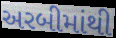
અરબીમાંથી